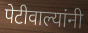
पेटीवाल्यांनी